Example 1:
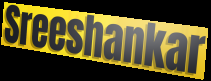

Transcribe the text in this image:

Sreeshankar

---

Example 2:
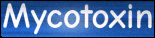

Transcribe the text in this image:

Mycotoxin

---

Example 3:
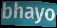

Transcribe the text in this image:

bhayo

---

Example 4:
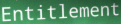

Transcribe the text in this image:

Entitlement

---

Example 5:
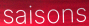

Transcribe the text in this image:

saisons